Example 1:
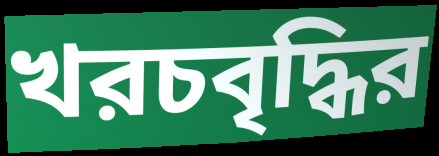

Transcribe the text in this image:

খরচবৃদ্ধির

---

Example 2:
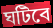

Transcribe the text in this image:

ঘটিবে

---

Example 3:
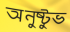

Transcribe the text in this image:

অনুষ্টুভ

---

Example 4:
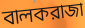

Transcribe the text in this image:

বালকরাজা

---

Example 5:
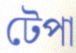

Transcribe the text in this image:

টেপা